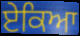
ਏਕਿਆ